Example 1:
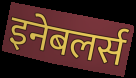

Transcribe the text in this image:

इनेबलर्स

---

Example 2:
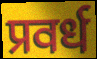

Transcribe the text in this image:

प्रवर्ध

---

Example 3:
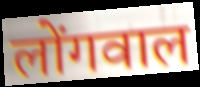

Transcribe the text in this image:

लोंगवाल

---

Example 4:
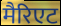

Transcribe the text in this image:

मैरिएट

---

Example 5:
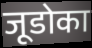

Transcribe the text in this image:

जूडोका